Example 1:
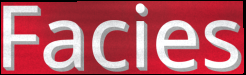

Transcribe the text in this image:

Facies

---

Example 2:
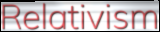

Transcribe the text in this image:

Relativism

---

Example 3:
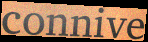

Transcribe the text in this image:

connive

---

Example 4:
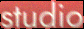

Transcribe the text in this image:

studio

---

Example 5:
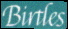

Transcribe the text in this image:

Birtles